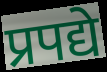
प्रपद्ये